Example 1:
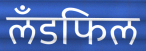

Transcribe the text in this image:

लँडफिल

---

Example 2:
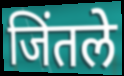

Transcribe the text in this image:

जिंतले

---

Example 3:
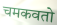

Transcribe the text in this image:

चमकवतो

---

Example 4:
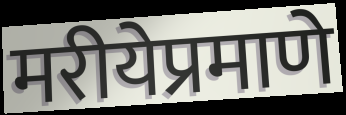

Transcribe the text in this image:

मरीयेप्रमाणे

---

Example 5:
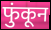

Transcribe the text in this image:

फुंकून